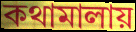
কথামালায়